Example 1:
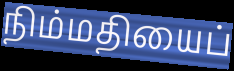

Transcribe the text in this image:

நிம்மதியைப்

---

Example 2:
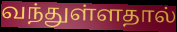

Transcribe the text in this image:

வந்துள்ளதால்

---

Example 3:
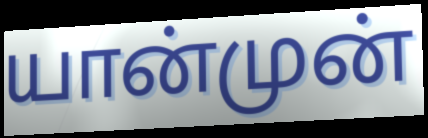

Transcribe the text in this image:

யான்முன்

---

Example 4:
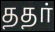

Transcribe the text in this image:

ததர்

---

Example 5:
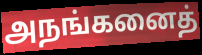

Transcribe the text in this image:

அநங்கனைத்